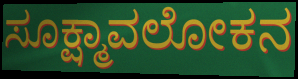
ಸೂಕ್ಷ್ಮಾವಲೋಕನ